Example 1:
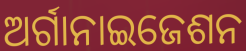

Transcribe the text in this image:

ଅର୍ଗାନାଇଜେଶନ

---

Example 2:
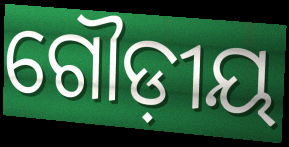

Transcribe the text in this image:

ଗୌଡ଼ୀୟ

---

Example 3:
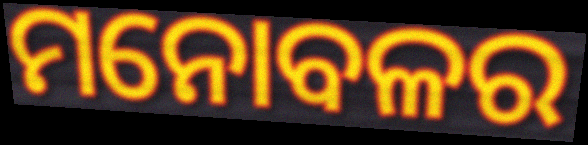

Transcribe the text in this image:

ମନୋବଳର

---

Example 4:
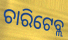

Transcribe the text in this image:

ଚାରିଟେବ୍ଲ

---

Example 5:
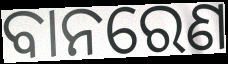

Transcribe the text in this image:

ବାନରେଣ